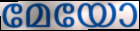
മേയോ